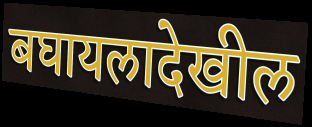
बघायलादेखील